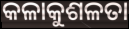
କଳାକୁଶଳତା